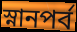
স্নানপর্ব